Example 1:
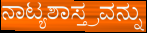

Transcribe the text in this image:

ನಾಟ್ಯಶಾಸ್ತ್ರವನ್ನು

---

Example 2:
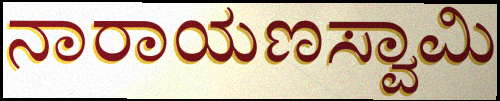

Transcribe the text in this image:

ನಾರಾಯಣಸ್ವಾಮಿ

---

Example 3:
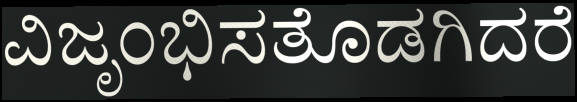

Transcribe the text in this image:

ವಿಜೃಂಭಿಸತೊಡಗಿದರೆ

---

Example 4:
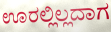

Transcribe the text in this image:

ಊರಲ್ಲಿಲ್ಲದಾಗ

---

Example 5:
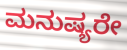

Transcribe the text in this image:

ಮನುಷ್ಯರೇ